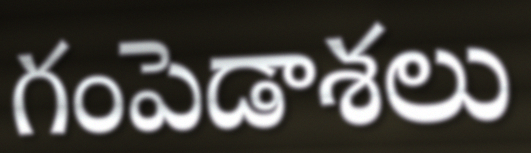
గంపెడాశలు